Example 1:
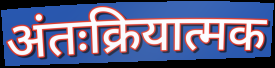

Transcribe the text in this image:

अंतःक्रियात्मक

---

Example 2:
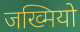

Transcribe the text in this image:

जख्मियो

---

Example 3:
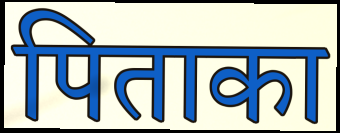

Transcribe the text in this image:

पिताका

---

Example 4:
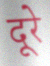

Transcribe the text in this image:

दूरे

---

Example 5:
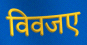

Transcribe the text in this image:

विवजए